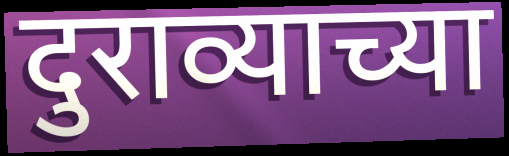
दुराव्याच्या